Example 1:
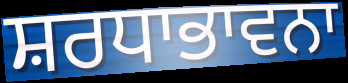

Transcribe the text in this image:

ਸ਼ਰਧਾਭਾਵਨਾ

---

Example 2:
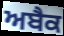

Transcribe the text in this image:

ਅਬੈਕ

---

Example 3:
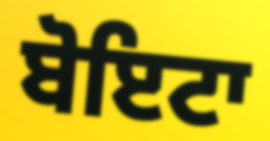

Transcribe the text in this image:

ਬੋਇਟਾ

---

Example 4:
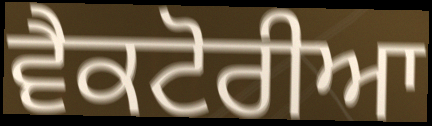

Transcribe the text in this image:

ਵੈਕਟੋਰੀਆ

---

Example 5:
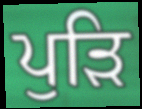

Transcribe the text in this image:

ਪੁੜਿ